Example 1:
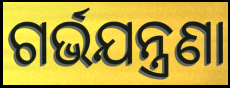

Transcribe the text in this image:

ଗର୍ଭଯନ୍ତ୍ରଣା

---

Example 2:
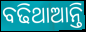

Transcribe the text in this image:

ବଢିଥାଆନ୍ତି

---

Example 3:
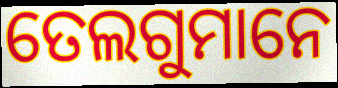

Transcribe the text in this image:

ତେଲଗୁମାନେ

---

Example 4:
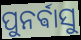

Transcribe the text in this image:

ପୁନର୍ଵାସୁ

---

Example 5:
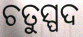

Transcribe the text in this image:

ଚତୁସ୍ପଦ